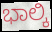
ಭಾಲ್ಕಿ